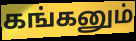
கங்கனும்